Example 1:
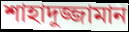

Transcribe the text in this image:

শাহাদুজ্জামান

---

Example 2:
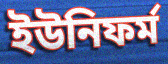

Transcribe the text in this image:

ইউনিফর্ম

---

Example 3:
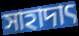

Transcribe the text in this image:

সাহাদাৎ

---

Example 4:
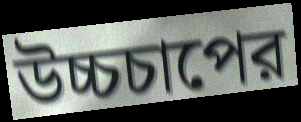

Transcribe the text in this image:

উচ্চচাপের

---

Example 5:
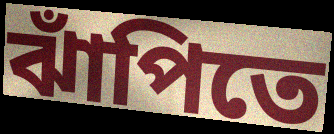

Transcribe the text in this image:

ঝাঁপিতে